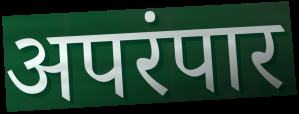
अपरंपार